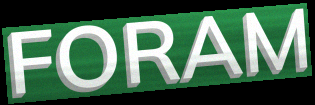
FORAM